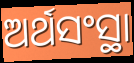
ଅର୍ଥସଂସ୍ଥା